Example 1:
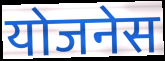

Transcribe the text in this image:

योजनेस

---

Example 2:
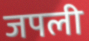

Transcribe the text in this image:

जपली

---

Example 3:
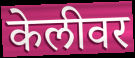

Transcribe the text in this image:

केलीवर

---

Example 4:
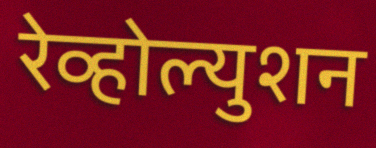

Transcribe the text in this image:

रेव्होल्युशन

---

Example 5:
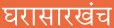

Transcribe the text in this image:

घरासारखंच